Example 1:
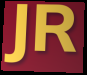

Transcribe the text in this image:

JR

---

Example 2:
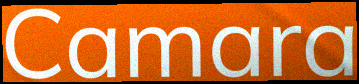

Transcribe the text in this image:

Camara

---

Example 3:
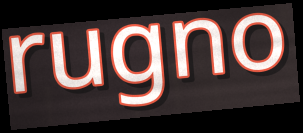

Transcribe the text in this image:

rugno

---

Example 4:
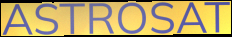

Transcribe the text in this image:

ASTROSAT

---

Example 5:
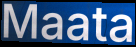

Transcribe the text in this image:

Maata